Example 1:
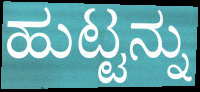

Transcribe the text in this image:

ಹುಟ್ಟನ್ನು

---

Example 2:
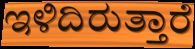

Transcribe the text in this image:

ಇಳಿದಿರುತ್ತಾರೆ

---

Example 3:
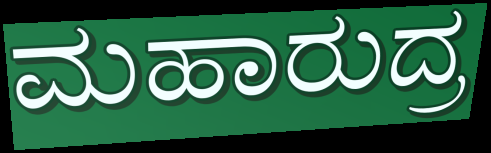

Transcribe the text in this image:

ಮಹಾರುದ್ರ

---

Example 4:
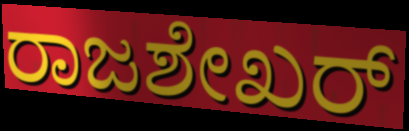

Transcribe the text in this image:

ರಾಜಶೇಖರ್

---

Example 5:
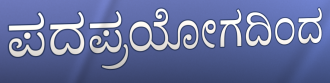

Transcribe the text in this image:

ಪದಪ್ರಯೋಗದಿಂದ